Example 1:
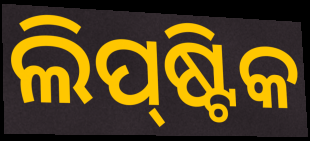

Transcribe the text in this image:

ଲିପ୍‌ଷ୍ଟିକ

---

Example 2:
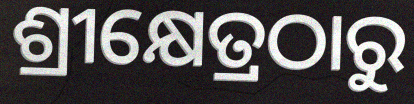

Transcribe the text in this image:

ଶ୍ରୀକ୍ଷେତ୍ରଠାରୁ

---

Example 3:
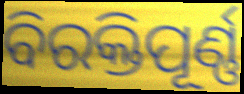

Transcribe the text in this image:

ବିରକ୍ତିପୂର୍ଣ୍ଣ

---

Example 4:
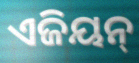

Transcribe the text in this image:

ଏଜିୟନ୍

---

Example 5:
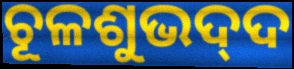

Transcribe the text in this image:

ଚୂଳଶୁଭଦ୍‍ଦ